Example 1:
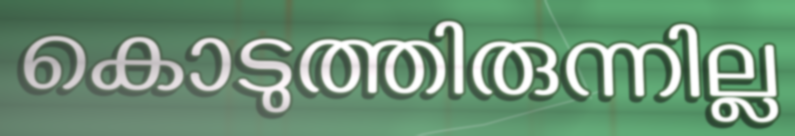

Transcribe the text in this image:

കൊടുത്തിരുന്നില്ല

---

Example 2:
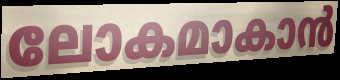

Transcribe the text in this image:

ലോകമാകാൻ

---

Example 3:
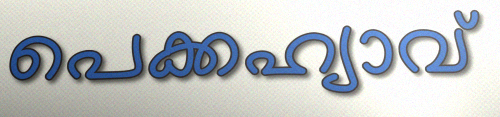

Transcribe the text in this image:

പെക്കഹ്യാവ്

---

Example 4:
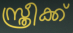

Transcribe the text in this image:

സ്ത്രീക്ക്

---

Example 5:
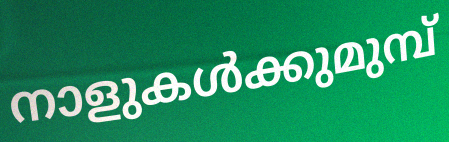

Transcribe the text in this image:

നാളുകൾക്കുമുമ്പ്